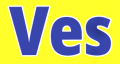
Ves